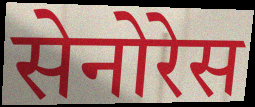
सेनोरेस